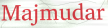
Majmudar